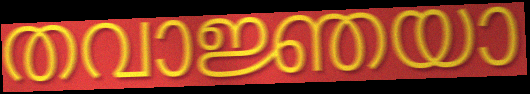
തവാജ്ഞയാ